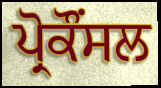
ਪ੍ਰੋਕੌਂਸਲ